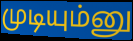
முடியும்னு